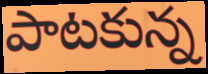
పాటకున్న